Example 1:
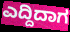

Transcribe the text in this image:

ಎದ್ದಿದಾಗ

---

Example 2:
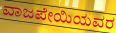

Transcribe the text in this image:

ವಾಜಪೇಯಿಯವರ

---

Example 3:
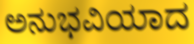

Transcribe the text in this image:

ಅನುಭವಿಯಾದ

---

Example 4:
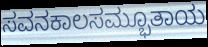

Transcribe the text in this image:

ಸವನಕಾಲಸಮ್ಭೂತಾಯ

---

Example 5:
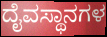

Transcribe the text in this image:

ದೈವಸ್ಥಾನಗಳ